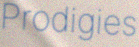
Prodigies